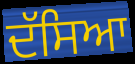
ਦੱਸਿਆ